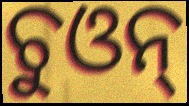
ଚୁଓନ୍